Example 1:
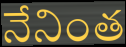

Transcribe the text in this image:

నేనింత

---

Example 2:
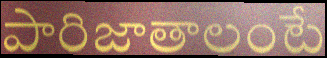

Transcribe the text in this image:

పారిజాతాలంటే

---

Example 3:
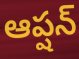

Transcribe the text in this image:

ఆప్షన్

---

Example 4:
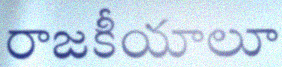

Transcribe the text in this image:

రాజకీయాలూ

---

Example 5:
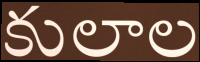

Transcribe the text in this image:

కులాల